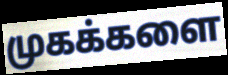
முகக்களை